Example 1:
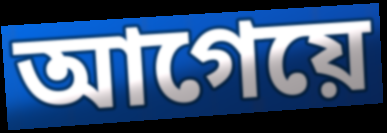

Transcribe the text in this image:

আগেয়ে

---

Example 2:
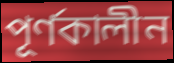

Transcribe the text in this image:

পূৰ্ণকালীন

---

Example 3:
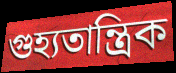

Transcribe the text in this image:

গুহ্যতান্ত্ৰিক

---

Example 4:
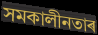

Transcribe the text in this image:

সমকালীনতাৰ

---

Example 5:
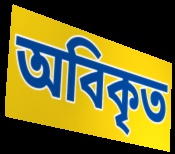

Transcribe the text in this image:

অবিকৃত